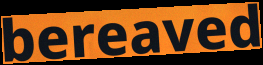
bereaved